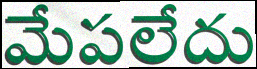
మేపలేదు